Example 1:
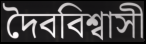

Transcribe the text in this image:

দৈববিশ্বাসী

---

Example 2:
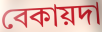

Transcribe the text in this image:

বেকায়দা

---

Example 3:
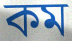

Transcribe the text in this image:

কম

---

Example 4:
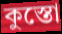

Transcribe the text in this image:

কুস্তো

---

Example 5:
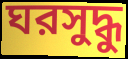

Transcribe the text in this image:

ঘরসুদ্ধু